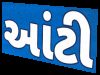
આંટી